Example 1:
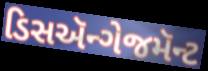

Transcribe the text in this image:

ડિસઍન્ગેજમૅન્ટ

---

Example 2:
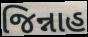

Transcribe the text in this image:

જિન્નાહ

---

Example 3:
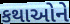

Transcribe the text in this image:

કથાઓને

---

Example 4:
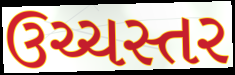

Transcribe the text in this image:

ઉચ્ચસ્તર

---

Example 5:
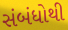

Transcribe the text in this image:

સંબંધોથી